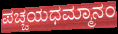
ಪಚ್ಚಯಧಮ್ಮಾನಂ